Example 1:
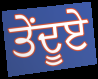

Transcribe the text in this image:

ਤੇਂਦੂਏ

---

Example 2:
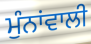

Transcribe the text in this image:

ਮੁੰਨਾਂਵਾਲੀ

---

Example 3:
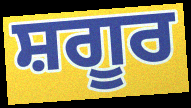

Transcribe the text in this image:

ਸ਼ਗੂਰ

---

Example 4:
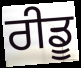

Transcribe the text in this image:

ਰੀਡੂ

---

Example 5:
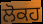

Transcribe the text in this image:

ਲੋਕਹ